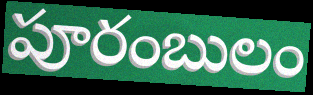
పూరంబులం